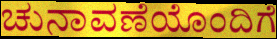
ಚುನಾವಣೆಯೊಂದಿಗೆ